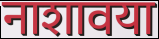
नाशावया